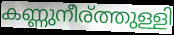
കണ്ണുനീര്ത്തുള്ളി